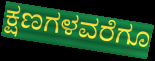
ಕ್ಷಣಗಳವರೆಗೂ